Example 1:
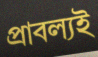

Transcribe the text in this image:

প্রাবল্যই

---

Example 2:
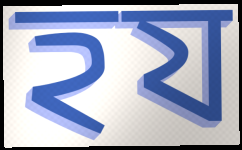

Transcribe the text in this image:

হয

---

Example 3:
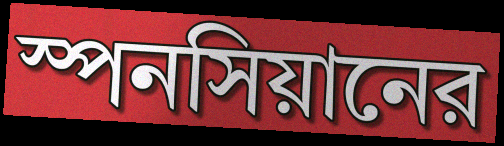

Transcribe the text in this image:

স্পনসিয়ানের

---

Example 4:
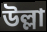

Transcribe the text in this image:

উল্লা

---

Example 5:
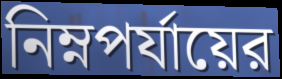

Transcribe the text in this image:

নিম্নপর্যায়ের